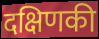
दक्षिणकी